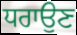
ਧਰਾਉਣ